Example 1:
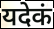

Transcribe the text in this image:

यदेकं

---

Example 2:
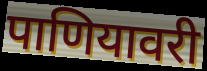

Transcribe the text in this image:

पाणियावरी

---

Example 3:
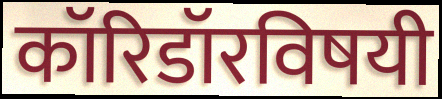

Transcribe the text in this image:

कॉरिडॉरविषयी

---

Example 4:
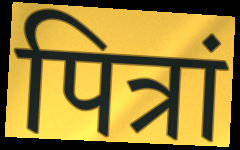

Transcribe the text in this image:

पित्रां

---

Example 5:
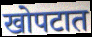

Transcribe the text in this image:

खोपटात